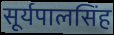
सूर्यपालसिंह